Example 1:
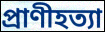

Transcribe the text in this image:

প্রাণীহত্যা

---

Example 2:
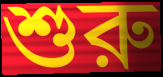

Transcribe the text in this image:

শুরু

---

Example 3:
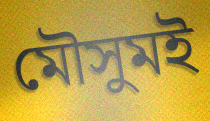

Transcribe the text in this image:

মৌসুমই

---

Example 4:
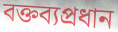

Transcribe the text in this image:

বক্তব্যপ্রধান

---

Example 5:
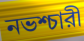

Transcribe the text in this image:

নভশ্চারী